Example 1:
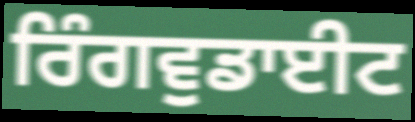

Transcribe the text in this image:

ਰਿੰਗਵੁਡਾਈਟ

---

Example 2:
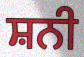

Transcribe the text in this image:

ਸ਼ਨੀ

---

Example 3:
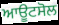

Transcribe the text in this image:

ਆਊਟਸੋਲ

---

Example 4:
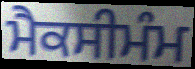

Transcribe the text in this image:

ਮੈਕਸੀਮੰਮ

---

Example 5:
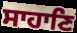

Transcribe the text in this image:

ਸਾਹਾਣਿ